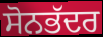
ਸੋਨਭੱਦਰ